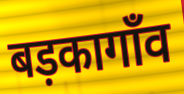
बड़कागाँव